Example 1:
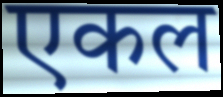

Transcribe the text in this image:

एकल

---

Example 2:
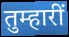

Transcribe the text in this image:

तुम्हारीं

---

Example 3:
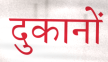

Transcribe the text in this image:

दुकानों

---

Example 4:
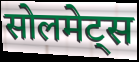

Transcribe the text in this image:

सोलमेट्स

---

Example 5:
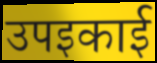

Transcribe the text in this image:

उपइकाई